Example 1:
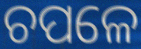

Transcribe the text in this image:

ଚପଳେ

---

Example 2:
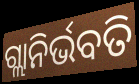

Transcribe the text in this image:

ଗ୍ଲାନିର୍ଭବତି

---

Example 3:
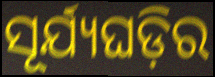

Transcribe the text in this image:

ସୂର୍ଯ୍ୟଘଡ଼ିର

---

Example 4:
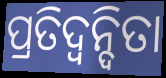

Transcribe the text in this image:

ପ୍ରତିଦ୍ଵନ୍ଦିତା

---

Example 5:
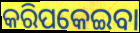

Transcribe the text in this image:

କରିପକେଇବା